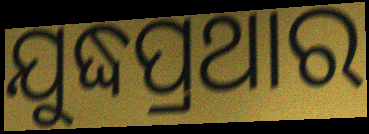
ଯୁଦ୍ଧପ୍ରଥାର